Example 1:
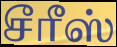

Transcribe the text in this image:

சீரீஸ்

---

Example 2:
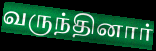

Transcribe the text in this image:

வருந்தினார்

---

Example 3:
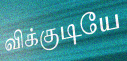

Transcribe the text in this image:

விக்குடியே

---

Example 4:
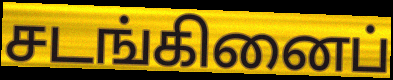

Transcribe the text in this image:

சடங்கினைப்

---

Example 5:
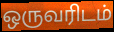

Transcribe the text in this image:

ஒருவரிடம்